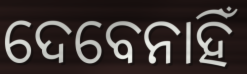
ଦେବେନାହିଁ